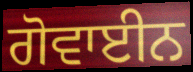
ਗੋਵਾਈਨ